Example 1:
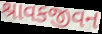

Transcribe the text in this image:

શ્રાવકજીવન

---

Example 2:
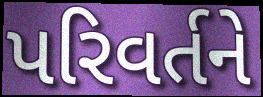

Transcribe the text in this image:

પરિવર્તને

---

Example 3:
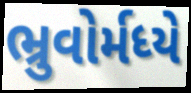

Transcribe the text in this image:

ભ્રુવોર્મધ્યે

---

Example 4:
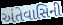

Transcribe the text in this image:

અંતેવાસિની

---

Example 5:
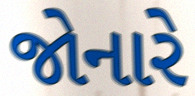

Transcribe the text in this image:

જોનારે